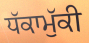
ਧੱਕਾਮੁੱਕੀ